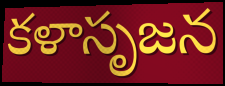
కళాసృజన